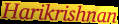
Harikrishnan